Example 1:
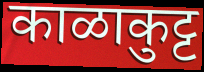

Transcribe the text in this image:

काळाकुट्ट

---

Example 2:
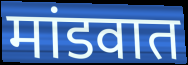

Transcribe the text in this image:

मांडवात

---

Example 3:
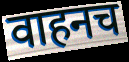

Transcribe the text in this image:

वाहनच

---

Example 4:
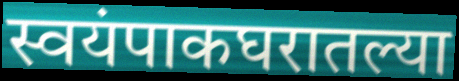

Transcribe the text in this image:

स्वयंपाकघरातल्या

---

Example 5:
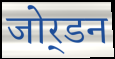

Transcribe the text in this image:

जोर्डन